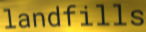
landfills